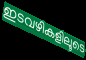
ഇടവഴികളിലൂടെ